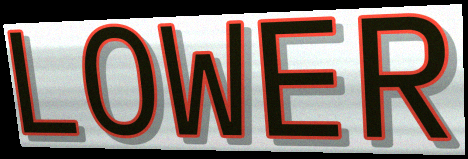
LOWER